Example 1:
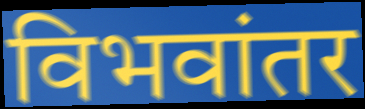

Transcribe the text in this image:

विभवांतर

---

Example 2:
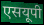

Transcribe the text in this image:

एसयूपी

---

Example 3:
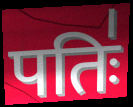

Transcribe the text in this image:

पतिः॑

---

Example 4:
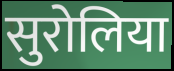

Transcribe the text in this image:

सुरोलिया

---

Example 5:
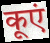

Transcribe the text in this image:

कूएं